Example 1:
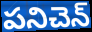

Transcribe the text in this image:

పనిచెన్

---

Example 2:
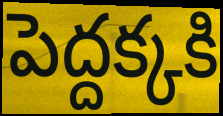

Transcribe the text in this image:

పెద్దక్కకి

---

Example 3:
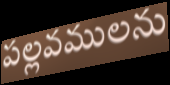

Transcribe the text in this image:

పల్లవములను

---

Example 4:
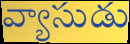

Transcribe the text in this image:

వ్యాసుడు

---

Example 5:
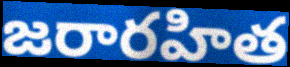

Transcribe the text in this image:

జరారహిత